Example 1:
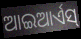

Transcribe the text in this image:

ଆଇଆର୍ଏସ୍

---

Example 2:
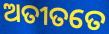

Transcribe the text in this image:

ଅତୀତତେ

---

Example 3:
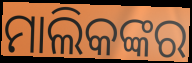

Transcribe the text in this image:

ମାଲିକଙ୍କର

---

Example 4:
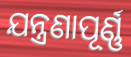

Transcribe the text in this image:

ଯନ୍ତ୍ରଣାପୂର୍ଣ୍ଣ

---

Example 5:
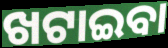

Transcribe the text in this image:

ଖଟାଇବା